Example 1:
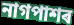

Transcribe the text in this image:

নাগপাশৰ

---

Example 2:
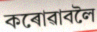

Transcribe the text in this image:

কৰোৱাবলৈ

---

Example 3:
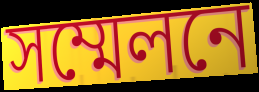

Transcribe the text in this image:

সম্মেলনে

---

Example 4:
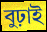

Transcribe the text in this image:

বুঢ়াই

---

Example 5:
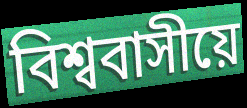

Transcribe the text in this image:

বিশ্ববাসীয়ে